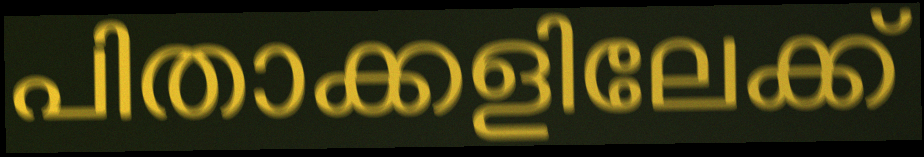
പിതാക്കളിലേക്ക്